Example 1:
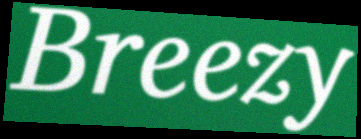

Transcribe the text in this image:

Breezy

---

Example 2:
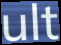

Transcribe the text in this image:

ult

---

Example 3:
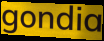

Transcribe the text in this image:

gondia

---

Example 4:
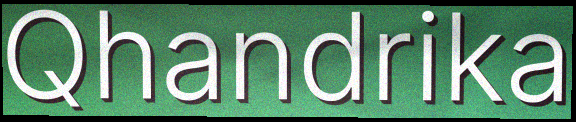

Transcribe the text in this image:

Qhandrika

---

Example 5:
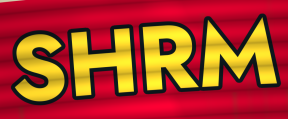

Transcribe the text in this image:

SHRM